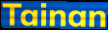
Tainan